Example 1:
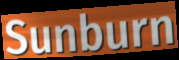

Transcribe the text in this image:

Sunburn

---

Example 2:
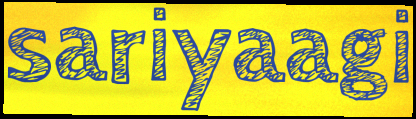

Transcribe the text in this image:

sariyaagi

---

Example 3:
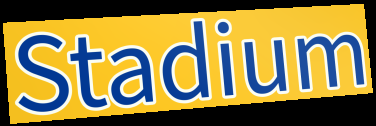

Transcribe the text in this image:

Stadium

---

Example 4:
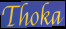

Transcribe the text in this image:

Thoka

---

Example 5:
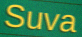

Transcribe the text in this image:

Suva